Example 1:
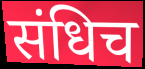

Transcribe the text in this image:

संधिच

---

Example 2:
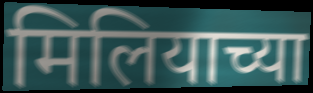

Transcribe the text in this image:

मिलियाच्या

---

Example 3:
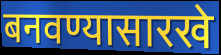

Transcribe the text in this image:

बनवण्यासारखे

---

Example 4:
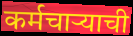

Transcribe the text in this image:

कर्मचार्‍याची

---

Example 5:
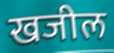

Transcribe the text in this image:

खजील